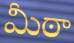
మీఠా